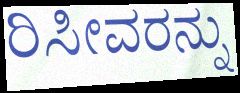
ರಿಸೀವರನ್ನು